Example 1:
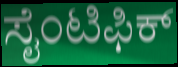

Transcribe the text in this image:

ಸೈಂಟಿಫಿಕ್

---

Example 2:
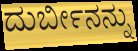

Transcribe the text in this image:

ದುರ್ಬೀನನ್ನು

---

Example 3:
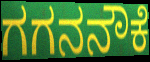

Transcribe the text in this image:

ಗಗನನೌಕೆ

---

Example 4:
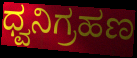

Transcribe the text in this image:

ಧ್ವನಿಗ್ರಹಣ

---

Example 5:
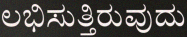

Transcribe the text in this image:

ಲಭಿಸುತ್ತಿರುವುದು